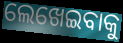
ଲେଖେଇବାକୁ